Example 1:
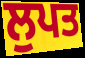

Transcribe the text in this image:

ਲੁਪਤ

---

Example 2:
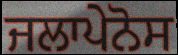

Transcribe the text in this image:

ਜਲਾਪੇਨੋਸ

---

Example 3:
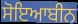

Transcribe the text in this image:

ਸੋਇਆਬੀਨ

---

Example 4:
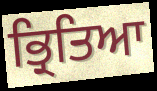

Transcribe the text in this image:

ਭ੍ਰਿਤਿਆ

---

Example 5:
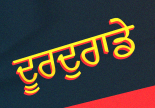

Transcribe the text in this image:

ਦੂਰਦੁਰਾਡੇ